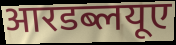
आरडब्लयूए